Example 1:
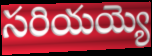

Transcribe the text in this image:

సరియయ్యె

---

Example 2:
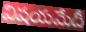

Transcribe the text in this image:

విషయమేదీ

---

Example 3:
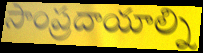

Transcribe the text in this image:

సాంప్రదాయాల్ని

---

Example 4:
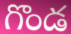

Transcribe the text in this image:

గొండ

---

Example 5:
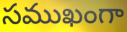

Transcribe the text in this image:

సముఖంగా